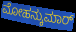
ಮೋಹನ್ಕುಮಾರ್